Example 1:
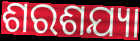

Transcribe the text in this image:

ଶରଶଯ୍ୟା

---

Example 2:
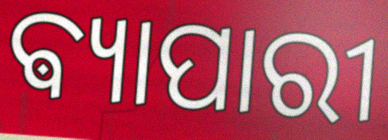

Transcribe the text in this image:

ଵ୍ୟାପାରୀ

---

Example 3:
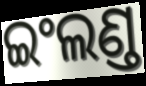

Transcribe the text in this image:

ଇଂଲଣ୍ଡ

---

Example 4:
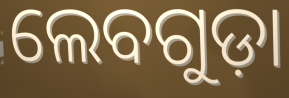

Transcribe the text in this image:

ଲେବଗୁଡ଼ା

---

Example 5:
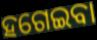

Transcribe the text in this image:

ହଗେଇବା